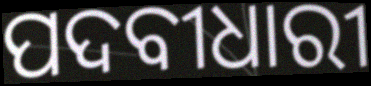
ପଦବୀଧାରୀ